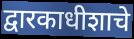
द्वारकाधीशाचे